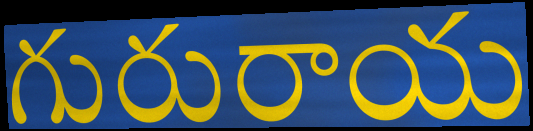
గురురాయ